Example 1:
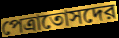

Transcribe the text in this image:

পেত্রাতোসদের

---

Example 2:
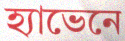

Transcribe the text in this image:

হ্যাভেনে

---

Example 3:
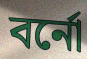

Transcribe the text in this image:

বর্নো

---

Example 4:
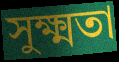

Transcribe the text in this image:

সুক্ষ্মতা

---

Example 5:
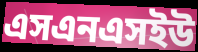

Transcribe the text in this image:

এসএনএসইউ